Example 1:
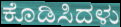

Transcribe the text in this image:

ಕೊಡಿಸಿದಳು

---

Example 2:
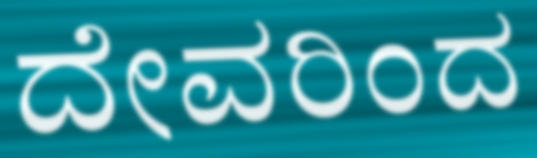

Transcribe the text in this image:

ದೇವರಿಂದ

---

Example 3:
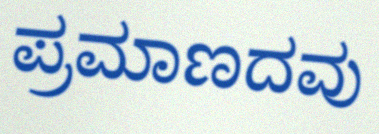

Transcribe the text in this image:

ಪ್ರಮಾಣದವು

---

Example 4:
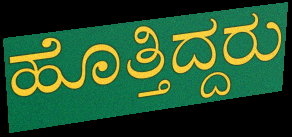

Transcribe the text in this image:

ಹೊತ್ತಿದ್ದರು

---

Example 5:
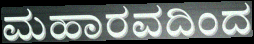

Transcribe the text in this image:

ಮಹಾರವದಿಂದ